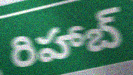
రిహాబ్